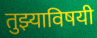
तुझ्याविषयी